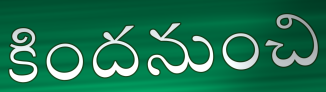
కిందనుంచి